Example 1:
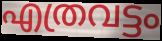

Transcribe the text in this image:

എത്രവട്ടം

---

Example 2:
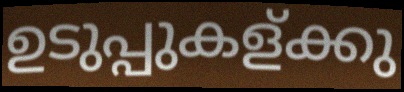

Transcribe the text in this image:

ഉടുപ്പുകള്ക്കു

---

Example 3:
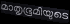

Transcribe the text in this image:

മാതൃഭൂമിയുടെ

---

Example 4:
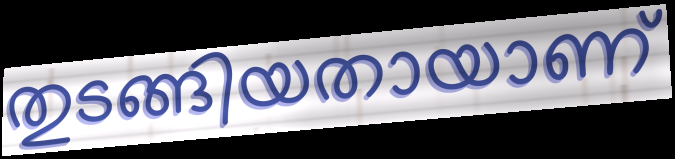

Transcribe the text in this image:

തുടങ്ങിയതായാണ്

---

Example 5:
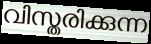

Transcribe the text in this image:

വിസ്തരിക്കുന്ന